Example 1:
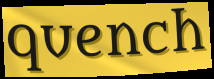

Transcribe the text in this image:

quench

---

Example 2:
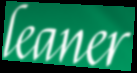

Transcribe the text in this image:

leaner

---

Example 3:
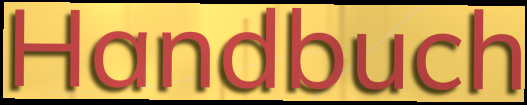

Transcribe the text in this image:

Handbuch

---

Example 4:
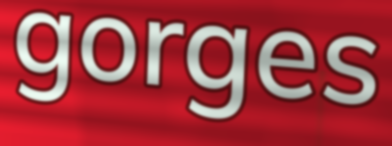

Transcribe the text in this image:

gorges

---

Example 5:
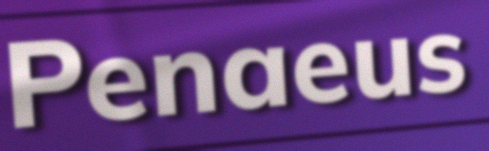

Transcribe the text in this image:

Penaeus